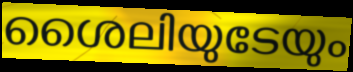
ശൈലിയുടേയും